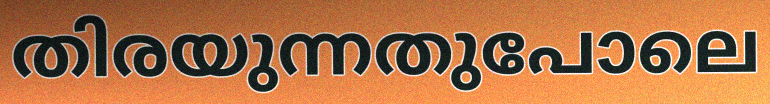
തിരയുന്നതുപോലെ